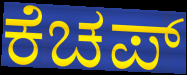
ಕೆಚಪ್